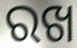
ରଖ